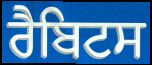
ਰੈਬਿਟਸ